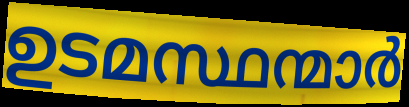
ഉടമസ്ഥന്മാർ